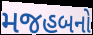
મજહબનો